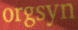
orgsyn